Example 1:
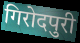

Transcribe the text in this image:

गिरोदपुरी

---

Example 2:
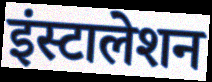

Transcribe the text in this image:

इंस्टालेशन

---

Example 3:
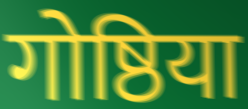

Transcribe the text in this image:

गोष्ठिया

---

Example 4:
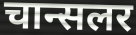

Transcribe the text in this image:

चान्सलर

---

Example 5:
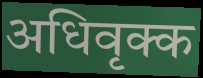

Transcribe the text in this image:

अधिवृक्क